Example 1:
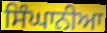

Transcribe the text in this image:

ਸਿੰਘਾਨੀਆ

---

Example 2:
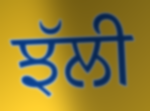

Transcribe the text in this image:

ਝੱਲੀ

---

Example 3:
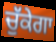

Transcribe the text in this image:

ਚੁੱਕੇਗਾ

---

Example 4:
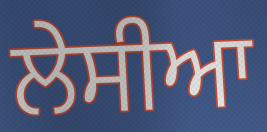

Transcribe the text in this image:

ਲੇਸੀਆ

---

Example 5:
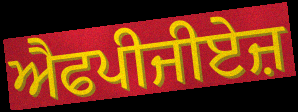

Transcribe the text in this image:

ਐਫਪੀਜੀਏਜ਼